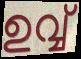
ഉവ്വ്